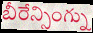
బీరేన్సింగ్ను